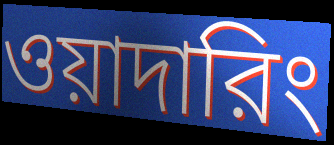
ওয়াদারিং